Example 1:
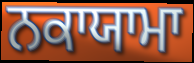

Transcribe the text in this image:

ਨਕਾਯਾਮਾ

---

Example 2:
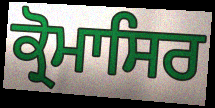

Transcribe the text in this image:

ਕ੍ਰੋਮਾਸਿਰ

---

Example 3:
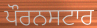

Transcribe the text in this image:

ਪੌਰਨਸਟਾਰ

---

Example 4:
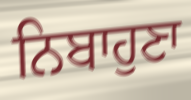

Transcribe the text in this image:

ਨਿਬਾਹੁਣਾ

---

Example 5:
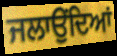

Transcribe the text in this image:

ਜਲਾਉਂਦਿਆਂ